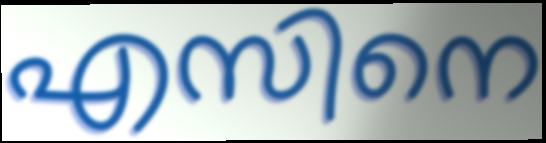
എസിനെ